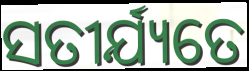
ସତୀର୍ଯ୍ୟତେ